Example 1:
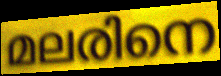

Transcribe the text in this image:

മലരിനെ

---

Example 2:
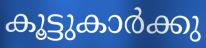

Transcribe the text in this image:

കൂട്ടുകാർക്കു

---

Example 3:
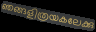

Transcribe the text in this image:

ഞങ്ങളിത്രയകലേക്കു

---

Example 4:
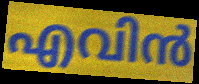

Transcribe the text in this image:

എവിൻ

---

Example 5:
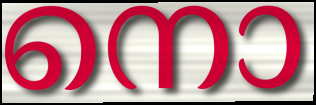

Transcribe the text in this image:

നൊ